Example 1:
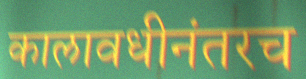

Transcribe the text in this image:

कालावधीनंतरच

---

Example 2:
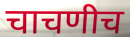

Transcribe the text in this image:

चाचणीच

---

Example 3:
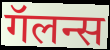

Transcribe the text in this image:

गॅलन्स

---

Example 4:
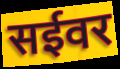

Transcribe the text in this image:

सईवर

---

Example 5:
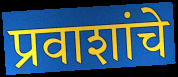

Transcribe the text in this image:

प्रवाशांचे